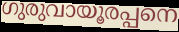
ഗുരുവായൂരപ്പനെ